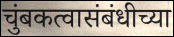
चुंबकत्वासंबंधीच्या